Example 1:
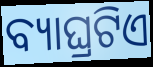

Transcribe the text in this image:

ବ୍ୟାଘ୍ରଟିଏ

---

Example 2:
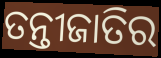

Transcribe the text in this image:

ତନ୍ତୀଜାତିର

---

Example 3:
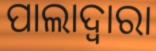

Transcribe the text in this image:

ପାଲାଦ୍ୱାରା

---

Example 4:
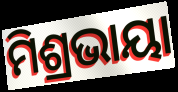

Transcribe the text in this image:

ମିଶ୍ରଭାୟା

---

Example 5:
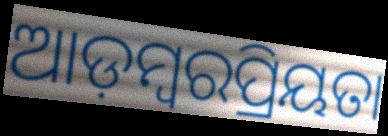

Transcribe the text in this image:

ଆଡ଼ମ୍ବରପ୍ରିୟତା